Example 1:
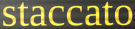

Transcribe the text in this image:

staccato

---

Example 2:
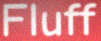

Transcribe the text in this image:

Fluff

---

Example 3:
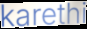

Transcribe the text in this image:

karethi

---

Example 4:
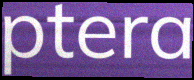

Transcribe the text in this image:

ptera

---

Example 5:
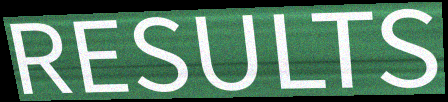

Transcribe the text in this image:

RESULTS